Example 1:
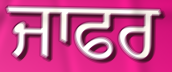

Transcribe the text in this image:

ਜਾਫਰ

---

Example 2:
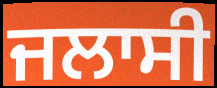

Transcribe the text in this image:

ਜਲਾਸੀ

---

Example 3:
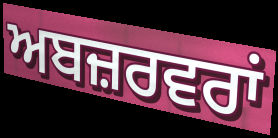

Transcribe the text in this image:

ਅਬਜ਼ਰਵਰਾਂ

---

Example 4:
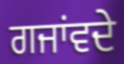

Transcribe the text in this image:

ਗਜਾਂਵਦੇ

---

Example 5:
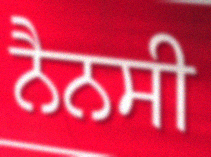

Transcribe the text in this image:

ਨੈਨਸੀ